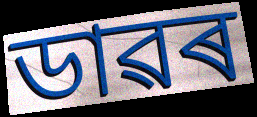
ডাৱৰ